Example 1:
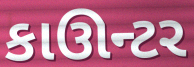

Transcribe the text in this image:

કાઊન્ટર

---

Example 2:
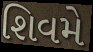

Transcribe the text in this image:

શિવમે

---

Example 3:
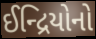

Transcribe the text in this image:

ઈન્દ્રિયોનો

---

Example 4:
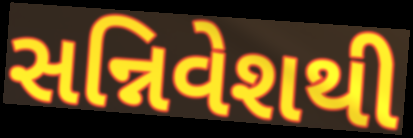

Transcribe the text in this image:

સન્નિવેશથી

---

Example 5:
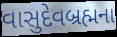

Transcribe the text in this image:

વાસુદેવબ્રહ્મના